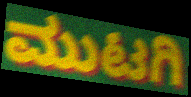
ಮುಟಗಿ